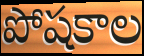
పోషకాల